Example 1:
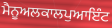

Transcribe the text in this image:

ਮੈਨੂਅਲਕਾਲਪੁਆਇੰਟ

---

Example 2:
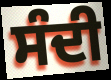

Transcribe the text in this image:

ਸੰਦੀ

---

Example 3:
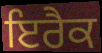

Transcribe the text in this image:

ਇਰੈਕ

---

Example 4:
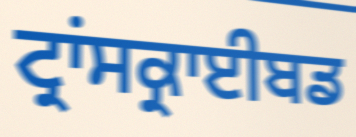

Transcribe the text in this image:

ਟ੍ਰਾਂਸਕ੍ਰਾਈਬਡ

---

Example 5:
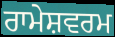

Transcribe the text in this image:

ਰਾਮੇਸ਼ਵਰਮ